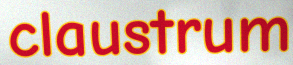
claustrum